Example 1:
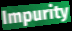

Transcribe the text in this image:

Impurity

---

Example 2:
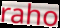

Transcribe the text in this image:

raho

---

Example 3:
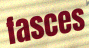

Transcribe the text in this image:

fasces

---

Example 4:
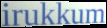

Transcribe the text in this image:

irukkum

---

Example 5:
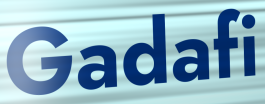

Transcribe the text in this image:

Gadafi